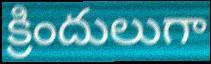
క్రిందులుగా